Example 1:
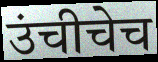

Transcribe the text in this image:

उंचीचेच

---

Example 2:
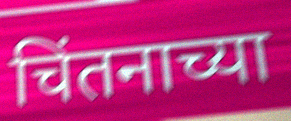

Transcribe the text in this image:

चिंतनाच्या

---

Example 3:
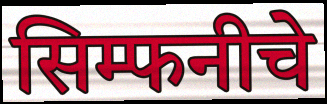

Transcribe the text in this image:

सिम्फनीचे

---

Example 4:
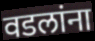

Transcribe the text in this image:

वडलांना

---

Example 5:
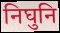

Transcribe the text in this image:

निघुनि